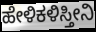
ಹೇಳಿಕಳಿಸ್ತೀನಿ